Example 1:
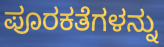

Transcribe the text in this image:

ಪೂರಕತೆಗಳನ್ನು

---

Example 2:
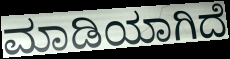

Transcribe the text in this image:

ಮಾಡಿಯಾಗಿದೆ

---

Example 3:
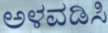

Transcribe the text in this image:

ಅಳವಡಿಸಿ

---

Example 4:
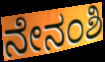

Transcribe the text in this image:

ನೇನಂಶಿ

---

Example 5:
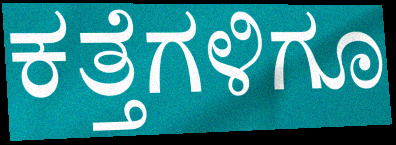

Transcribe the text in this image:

ಕತ್ತೆಗಳಿಗೂ